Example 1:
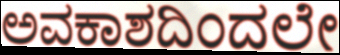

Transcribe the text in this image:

ಅವಕಾಶದಿಂದಲೇ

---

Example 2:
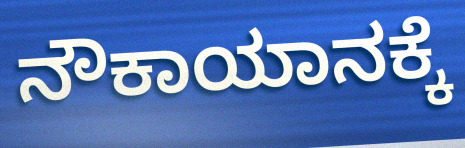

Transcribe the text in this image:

ನೌಕಾಯಾನಕ್ಕೆ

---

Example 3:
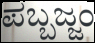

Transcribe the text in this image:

ಪಬ್ಬಜ್ಜಂ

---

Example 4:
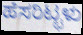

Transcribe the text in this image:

ಹೆಸರಿಟ್ಟಳು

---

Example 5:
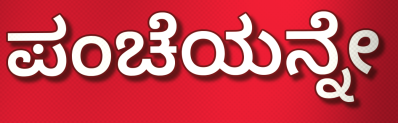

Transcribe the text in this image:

ಪಂಚೆಯನ್ನೇ